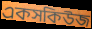
একসকিউজ